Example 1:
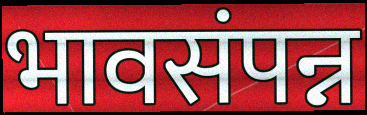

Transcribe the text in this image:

भावसंपन्न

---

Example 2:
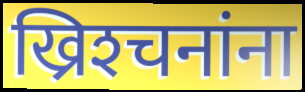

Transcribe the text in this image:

ख्रिश्‍चनांना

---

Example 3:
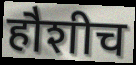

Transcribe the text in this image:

हौशीच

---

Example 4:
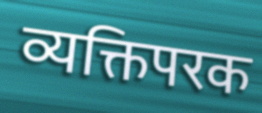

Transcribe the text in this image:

व्यक्तिपरक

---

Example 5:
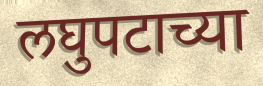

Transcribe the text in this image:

लघुपटाच्या